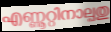
എണ്ണൂറ്റിനാല്പതു